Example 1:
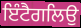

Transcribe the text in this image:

ਇੰਟੈਗਲਿਉ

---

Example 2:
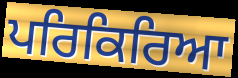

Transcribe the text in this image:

ਪਰਿਕਿਰਿਆ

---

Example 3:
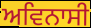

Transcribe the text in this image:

ਅਵਿਨਾਸੀ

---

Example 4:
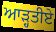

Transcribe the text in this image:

ਆੜ੍ਹਤੀਏ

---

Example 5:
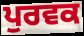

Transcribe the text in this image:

ਪੁਰਵਕ